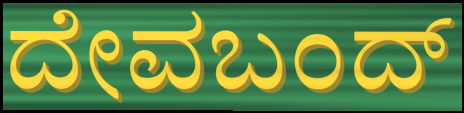
ದೇವಬಂದ್